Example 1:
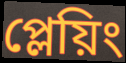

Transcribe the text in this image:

প্লেয়িং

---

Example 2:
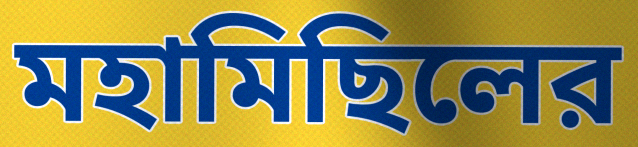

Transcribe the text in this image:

মহামিছিলের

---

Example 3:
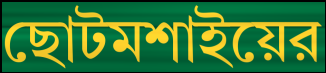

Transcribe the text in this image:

ছোটমশাইয়ের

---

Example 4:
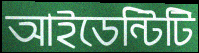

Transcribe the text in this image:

আইডেন্টিটি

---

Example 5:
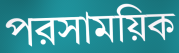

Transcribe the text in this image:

পরসাময়িক